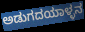
ಅಡುಗದಯಾಳ್ಳನ